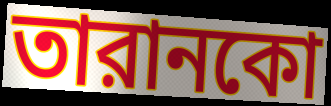
তারানকো